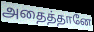
அதைத்தானே